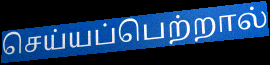
செய்யப்பெற்றால்